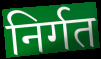
निर्गत